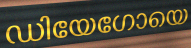
ഡിയേഗോയെ